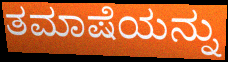
ತಮಾಷೆಯನ್ನು